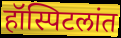
हॉस्पिटलांत